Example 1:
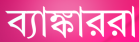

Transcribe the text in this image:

ব্যাঙ্কাররা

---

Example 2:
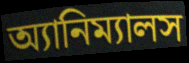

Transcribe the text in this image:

অ্যানিম্যালস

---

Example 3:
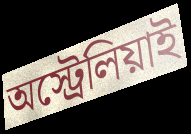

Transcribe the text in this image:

অস্ট্রেলিয়াই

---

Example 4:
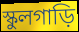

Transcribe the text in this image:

স্কুলগাড়ি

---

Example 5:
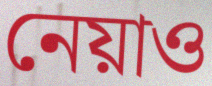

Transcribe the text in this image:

নেয়াও